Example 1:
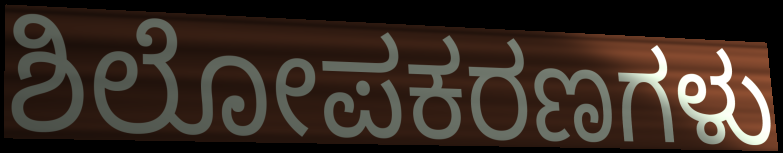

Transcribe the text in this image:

ಶಿಲೋಪಕರಣಗಳು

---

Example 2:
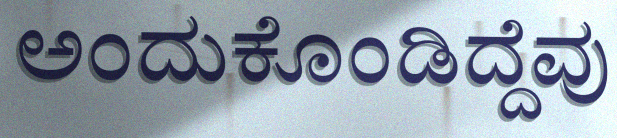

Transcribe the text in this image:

ಅಂದುಕೊಂಡಿದ್ದೆವು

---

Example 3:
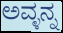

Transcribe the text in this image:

ಅವ್ಳನ್ನ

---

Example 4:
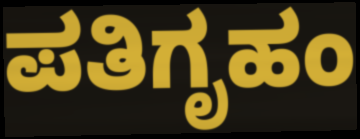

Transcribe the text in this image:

ಪತಿಗೃಹಂ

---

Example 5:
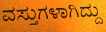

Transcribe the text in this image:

ವಸ್ತುಗಳಾಗಿದ್ದು